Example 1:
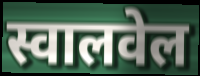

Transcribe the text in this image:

स्वालवेल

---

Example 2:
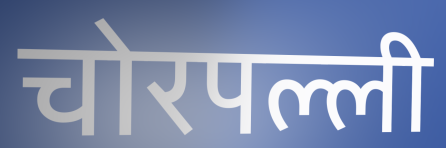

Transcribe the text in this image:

चोरपल्ली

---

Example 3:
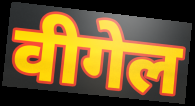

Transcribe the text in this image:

वीगेल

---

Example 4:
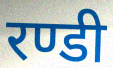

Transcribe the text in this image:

रण्डी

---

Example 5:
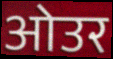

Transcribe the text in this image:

ओउर